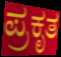
ಪ್ರಕೃತ